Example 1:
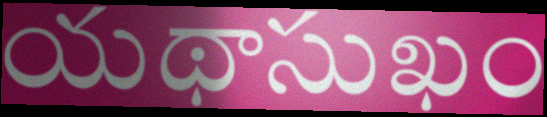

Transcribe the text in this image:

యథాసుఖం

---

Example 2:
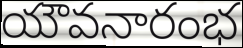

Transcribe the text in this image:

యౌవనారంభ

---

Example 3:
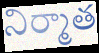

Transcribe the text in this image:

నిర్మాత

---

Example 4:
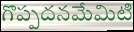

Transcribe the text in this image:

గొప్పదనమేమిటి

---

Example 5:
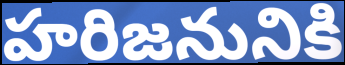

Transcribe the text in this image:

హరిజనునికి